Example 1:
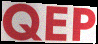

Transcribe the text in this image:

QEP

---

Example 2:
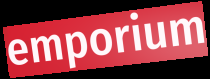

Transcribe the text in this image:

emporium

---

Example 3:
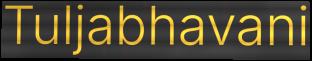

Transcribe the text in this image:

Tuljabhavani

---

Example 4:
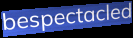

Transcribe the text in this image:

bespectacled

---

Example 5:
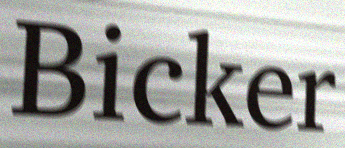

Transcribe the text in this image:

Bicker